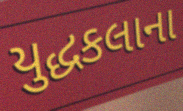
યુદ્ધકલાના